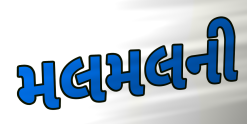
મલમલની